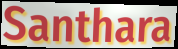
Santhara